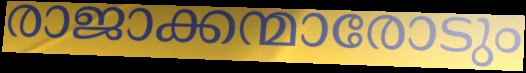
രാജാക്കന്മാരോടും